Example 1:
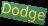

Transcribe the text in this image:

Dodge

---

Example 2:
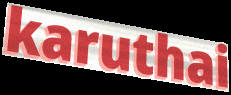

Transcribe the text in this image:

karuthai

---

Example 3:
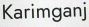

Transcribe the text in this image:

Karimganj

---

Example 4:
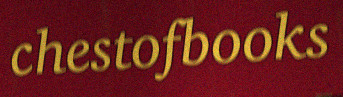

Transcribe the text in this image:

chestofbooks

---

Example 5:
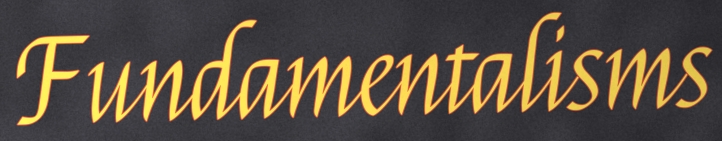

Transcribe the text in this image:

Fundamentalisms